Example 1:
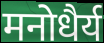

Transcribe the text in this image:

मनोधैर्य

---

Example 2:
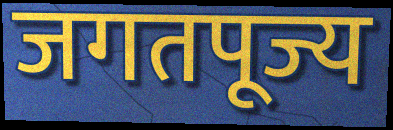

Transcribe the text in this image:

जगतपूज्य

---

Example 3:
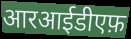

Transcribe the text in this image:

आरआईडीएफ़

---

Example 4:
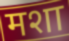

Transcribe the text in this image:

मशा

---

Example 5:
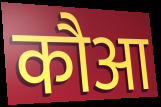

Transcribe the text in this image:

कौआ